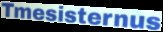
Tmesisternus